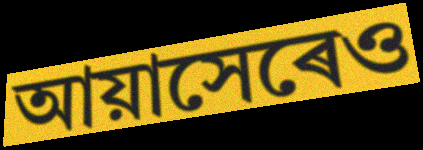
আয়াসেৰেও